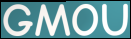
GMOU